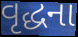
વૃદ્ધના